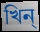
খিন্